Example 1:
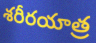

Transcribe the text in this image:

శరీరయాత్ర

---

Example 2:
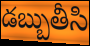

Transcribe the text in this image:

డబ్బుతీసి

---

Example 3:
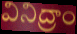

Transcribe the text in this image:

వినిద్రాం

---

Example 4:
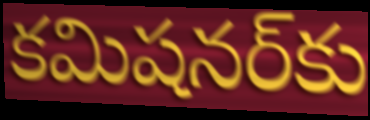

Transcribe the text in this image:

కమిషనర్‌కు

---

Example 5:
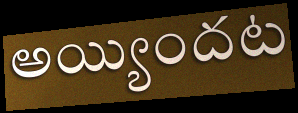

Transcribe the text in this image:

అయ్యిందట